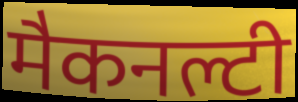
मैकनल्टी